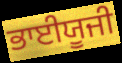
ਭਾਈਯੂਜੀ